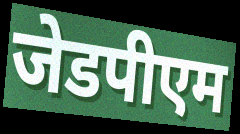
जेडपीएम